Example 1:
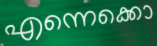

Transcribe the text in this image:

എന്നെക്കൊ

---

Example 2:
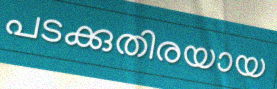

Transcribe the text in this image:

പടക്കുതിരയായ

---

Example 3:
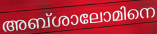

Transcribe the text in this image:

അബ്ശാലോമിനെ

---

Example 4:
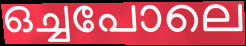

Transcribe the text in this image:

ഒച്ചപോലെ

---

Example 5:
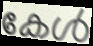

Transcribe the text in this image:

കേൾ